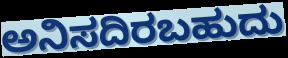
ಅನಿಸದಿರಬಹುದು